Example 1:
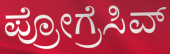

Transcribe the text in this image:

ಪ್ರೋಗ್ರೆಸಿವ್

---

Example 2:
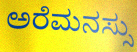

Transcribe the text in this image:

ಅರೆಮನಸ್ಸು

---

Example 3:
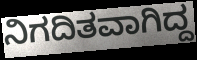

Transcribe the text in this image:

ನಿಗದಿತವಾಗಿದ್ದ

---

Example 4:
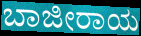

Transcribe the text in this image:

ಬಾಜೀರಾಯ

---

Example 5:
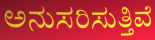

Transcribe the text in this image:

ಅನುಸರಿಸುತ್ತಿವೆ